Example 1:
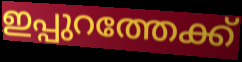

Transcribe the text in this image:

ഇപ്പുറത്തേക്ക്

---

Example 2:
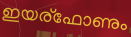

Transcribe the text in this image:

ഇയര്ഫോണും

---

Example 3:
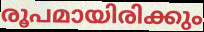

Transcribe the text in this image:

രൂപമായിരിക്കും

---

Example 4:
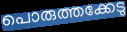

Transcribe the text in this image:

പൊരുത്തക്കേടു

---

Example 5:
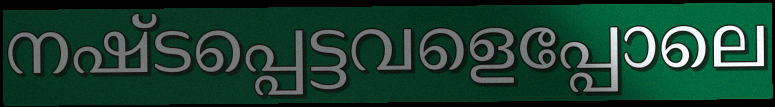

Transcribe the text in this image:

നഷ്ടപ്പെട്ടവളെപ്പോലെ